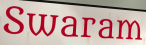
Swaram